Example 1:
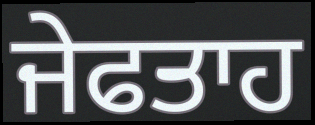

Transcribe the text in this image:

ਜੇਫਤਾਹ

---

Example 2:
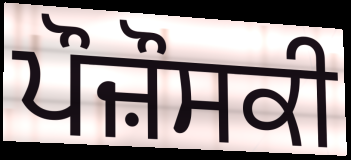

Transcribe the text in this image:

ਪੌਜ਼ੌਸਕੀ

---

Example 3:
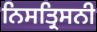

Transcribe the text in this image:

ਨਿਸਤ੍ਰਿਸਨੀ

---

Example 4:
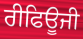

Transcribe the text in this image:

ਰੀਫਿਊਜੀ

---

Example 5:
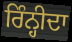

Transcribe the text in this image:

ਰਿੰਨ੍ਹੀਦਾ